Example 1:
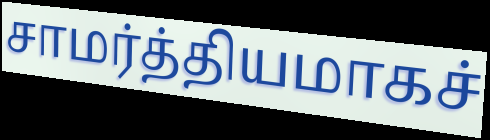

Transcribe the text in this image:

சாமர்த்தியமாகச்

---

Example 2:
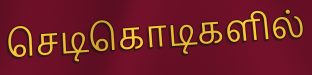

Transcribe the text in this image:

செடிகொடிகளில்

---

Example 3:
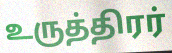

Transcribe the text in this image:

உருத்திரர்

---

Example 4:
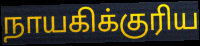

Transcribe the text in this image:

நாயகிக்குரிய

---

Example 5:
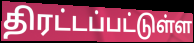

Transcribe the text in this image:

திரட்டப்பட்டுள்ள